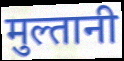
मुल्‍तानी